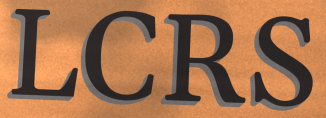
LCRS